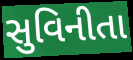
સુવિનીતા